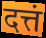
दत्तं